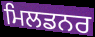
ਮਿਲਡਨਰ